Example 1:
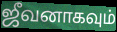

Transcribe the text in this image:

ஜீவனாகவும்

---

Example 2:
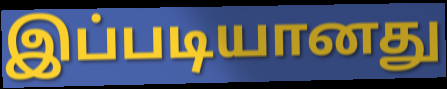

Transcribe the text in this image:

இப்படியானது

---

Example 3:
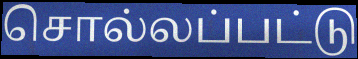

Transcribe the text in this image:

சொல்லப்பட்டு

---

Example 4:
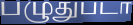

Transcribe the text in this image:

பழுதுபடா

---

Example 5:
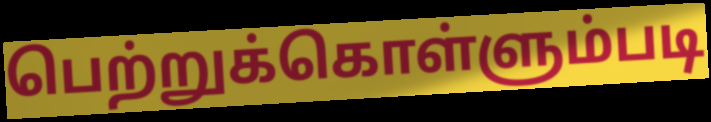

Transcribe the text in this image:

பெற்றுக்கொள்ளும்படி